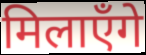
मिलाएँगे